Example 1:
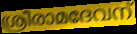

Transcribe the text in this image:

ശ്രീരാമദേവന്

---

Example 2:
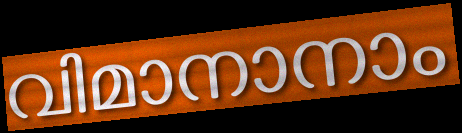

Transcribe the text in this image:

വിമാനാനാം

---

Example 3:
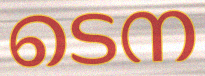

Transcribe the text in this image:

ടെന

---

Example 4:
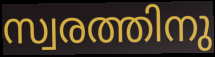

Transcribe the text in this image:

സ്വരത്തിനു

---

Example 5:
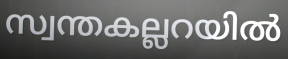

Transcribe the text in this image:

സ്വന്തകല്ലറയിൽ